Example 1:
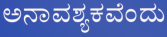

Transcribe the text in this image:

ಅನಾವಶ್ಯಕವೆಂದು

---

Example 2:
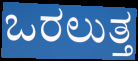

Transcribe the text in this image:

ಒರಲುತ್ತ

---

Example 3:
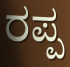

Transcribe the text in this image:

ರಪ್ಪ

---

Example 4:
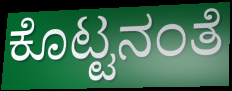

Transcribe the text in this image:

ಕೊಟ್ಟನಂತೆ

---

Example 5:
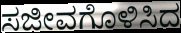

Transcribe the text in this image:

ಸಜೀವಗೊಳಿಸಿದ